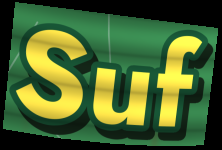
Suf